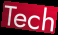
Tech